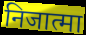
निजात्मा